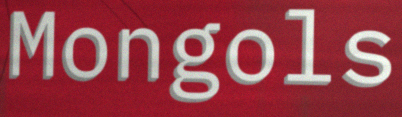
Mongols